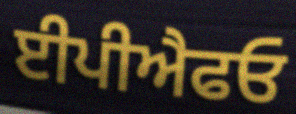
ਈਪੀਐਫਓ